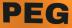
PEG